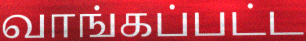
வாங்கப்பட்ட